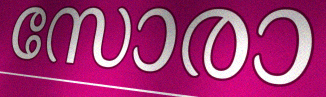
സോരാ